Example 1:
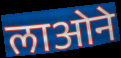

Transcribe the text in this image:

लाओने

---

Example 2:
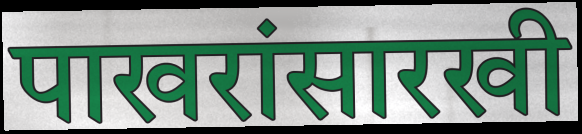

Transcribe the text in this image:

पाखरांसारखी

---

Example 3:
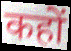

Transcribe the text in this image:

कहों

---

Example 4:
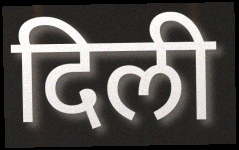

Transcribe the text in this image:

दिली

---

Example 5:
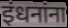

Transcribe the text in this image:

इंधनांना